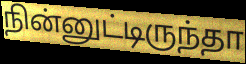
நின்னுட்டிருந்தா